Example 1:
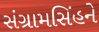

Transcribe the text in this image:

સંગ્રામસિંહને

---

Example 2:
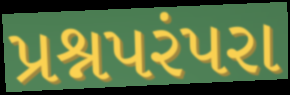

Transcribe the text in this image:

પ્રશ્નપરંપરા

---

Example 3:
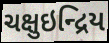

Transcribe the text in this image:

ચક્ષુઇન્દ્રિય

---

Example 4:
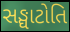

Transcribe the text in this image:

સઙ્ઘાટોતિ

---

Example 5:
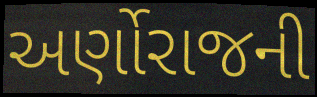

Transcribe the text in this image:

અર્ણોરાજની